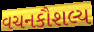
વચનકૌશલ્ય